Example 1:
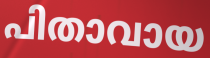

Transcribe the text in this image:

പിതാവായ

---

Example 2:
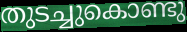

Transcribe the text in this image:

തുടച്ചുകൊണ്ടു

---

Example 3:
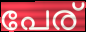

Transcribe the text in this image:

പേര്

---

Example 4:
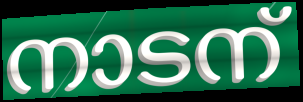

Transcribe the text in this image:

നാടന്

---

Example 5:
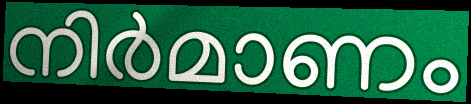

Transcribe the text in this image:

നിർമാണം